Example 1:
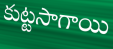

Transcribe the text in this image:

కుట్టసాగాయి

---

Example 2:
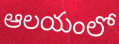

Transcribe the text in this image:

ఆలయంలో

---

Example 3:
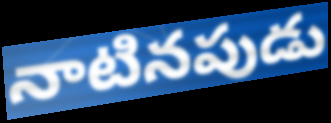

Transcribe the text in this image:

నాటినపుడు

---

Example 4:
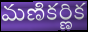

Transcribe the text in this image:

మణికర్ణిక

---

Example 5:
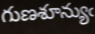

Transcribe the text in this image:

గుణశూన్యుఁ